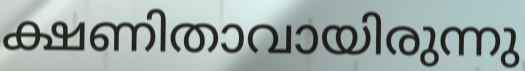
ക്ഷണിതാവായിരുന്നു